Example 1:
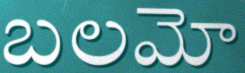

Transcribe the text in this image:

బలమో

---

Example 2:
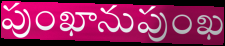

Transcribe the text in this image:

పుంఖానుపుంఖ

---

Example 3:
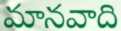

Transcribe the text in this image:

మానవాది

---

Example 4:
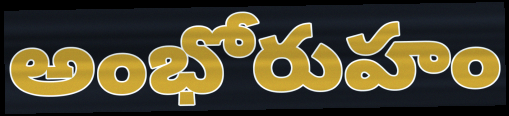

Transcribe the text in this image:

అంభోరుహం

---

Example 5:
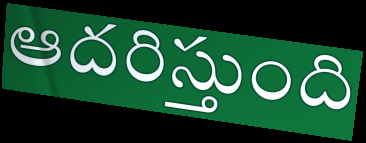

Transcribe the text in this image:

ఆదరిస్తుంది